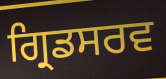
ਗ੍ਰਿਡਸਰਵ